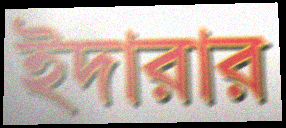
ইদারার